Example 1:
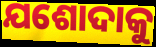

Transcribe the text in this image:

ଯଶୋଦାକୁ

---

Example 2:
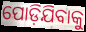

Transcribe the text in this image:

ପୋଡ଼ିଯିବାକୁ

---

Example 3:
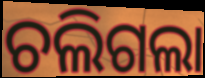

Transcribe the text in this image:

ଚଲିଗଲା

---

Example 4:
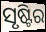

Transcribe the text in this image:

ସୃଷ୍ଟିର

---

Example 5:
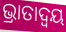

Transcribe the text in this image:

ଭ୍ରାତାଦ୍ୱୟ